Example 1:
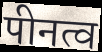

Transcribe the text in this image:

पीनत्व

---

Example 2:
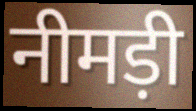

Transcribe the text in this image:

नीमड़ी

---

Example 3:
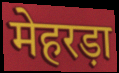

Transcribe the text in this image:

मेहरड़ा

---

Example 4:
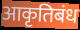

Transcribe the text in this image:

आकृतिबंध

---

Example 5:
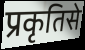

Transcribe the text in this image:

प्रकृतिसे